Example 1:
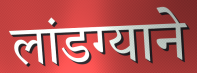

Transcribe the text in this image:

लांडग्याने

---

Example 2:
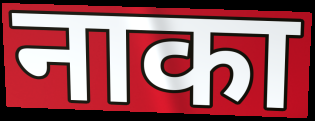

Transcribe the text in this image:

नाका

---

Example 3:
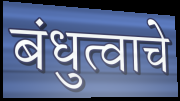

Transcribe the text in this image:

बंधुत्वाचे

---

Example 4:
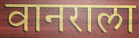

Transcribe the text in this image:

वानराला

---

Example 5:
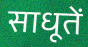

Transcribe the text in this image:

साधूतें